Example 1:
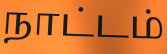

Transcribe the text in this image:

நாட்டம்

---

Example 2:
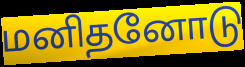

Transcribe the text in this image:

மனிதனோடு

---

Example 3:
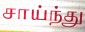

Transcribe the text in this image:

சாய்ந்து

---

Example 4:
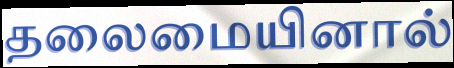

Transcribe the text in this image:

தலைமையினால்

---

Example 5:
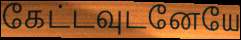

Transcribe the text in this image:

கேட்டவுடனேயே